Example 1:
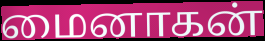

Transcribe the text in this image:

மைனாகன்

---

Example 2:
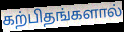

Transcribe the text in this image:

கற்பிதங்களால்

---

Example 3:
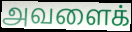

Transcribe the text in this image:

அவளைக்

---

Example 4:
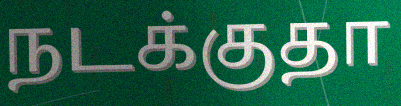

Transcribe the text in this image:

நடக்குதா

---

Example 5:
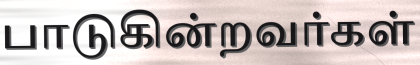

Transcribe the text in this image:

பாடுகின்றவர்கள்